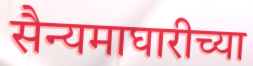
सैन्यमाघारीच्या